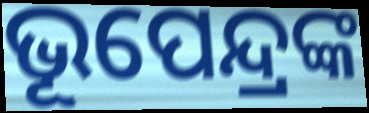
ଭୂପେନ୍ଦ୍ରଙ୍କ